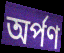
অর্পণ